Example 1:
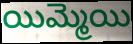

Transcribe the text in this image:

యిమ్మెయి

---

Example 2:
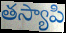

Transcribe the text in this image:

తస్యాపి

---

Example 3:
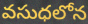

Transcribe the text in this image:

వసుధలోన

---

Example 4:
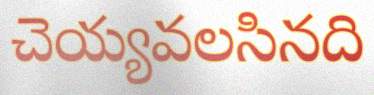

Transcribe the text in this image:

చెయ్యవలసినది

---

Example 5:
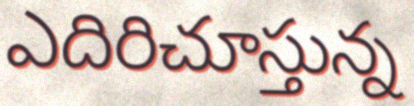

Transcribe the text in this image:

ఎదిరిచూస్తున్న